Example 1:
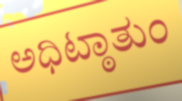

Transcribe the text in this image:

ಅಧಿಟ್ಠಾತುಂ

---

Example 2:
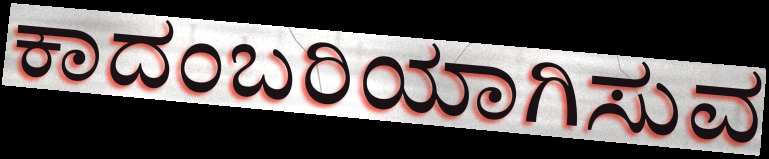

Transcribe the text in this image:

ಕಾದಂಬರಿಯಾಗಿಸುವ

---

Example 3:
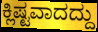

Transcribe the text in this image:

ಕ್ಲಿಷ್ಟವಾದದ್ದು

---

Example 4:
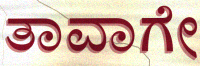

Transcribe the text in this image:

ತಾವಾಗೇ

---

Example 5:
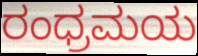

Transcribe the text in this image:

ರಂಧ್ರಮಯ